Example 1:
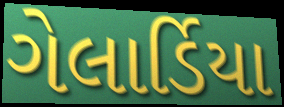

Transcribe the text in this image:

ગેલાર્ડિયા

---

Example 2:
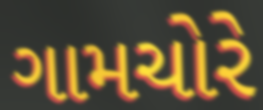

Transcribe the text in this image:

ગામચોરે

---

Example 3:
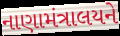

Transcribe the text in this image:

નાણામંત્રાલયને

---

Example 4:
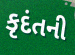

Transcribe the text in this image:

કૃદંતની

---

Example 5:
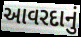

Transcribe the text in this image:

આવરદાનું